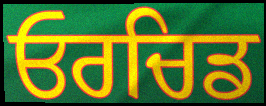
ਓਰਚਿਡ